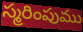
స్మరింపుము